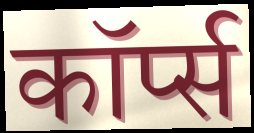
कॉर्प्स